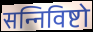
सन्निविष्टो